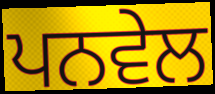
ਪਨਵੇਲ